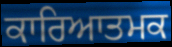
ਕਾਰਿਆਤਮਕ